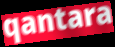
qantara